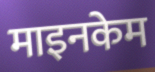
माइनकेम